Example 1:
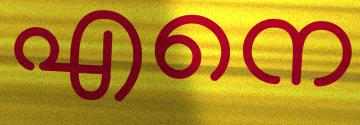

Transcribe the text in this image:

എനെ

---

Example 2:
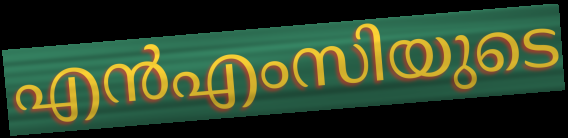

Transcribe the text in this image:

എൻഎംസിയുടെ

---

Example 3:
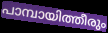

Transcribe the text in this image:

പാമ്പായിത്തീരും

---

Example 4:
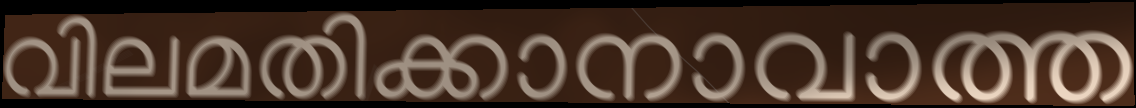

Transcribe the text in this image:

വിലമതിക്കാനാവാത്ത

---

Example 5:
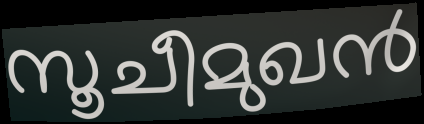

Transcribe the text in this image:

സൂചീമുഖൻ